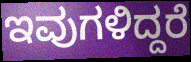
ಇವುಗಳಿದ್ದರೆ